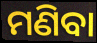
ମଣିବା